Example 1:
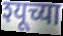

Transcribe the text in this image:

श्यूच्या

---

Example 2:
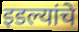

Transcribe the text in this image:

इडल्यांचे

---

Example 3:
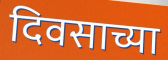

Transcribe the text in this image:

दिवसाच्या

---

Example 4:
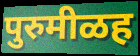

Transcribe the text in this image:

पुरुमीळह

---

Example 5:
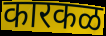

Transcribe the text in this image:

कारकळ